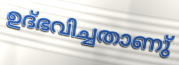
ഉദ്ഭവിച്ചതാണു്